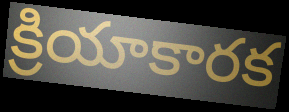
క్రియాకారక